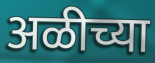
अळीच्या